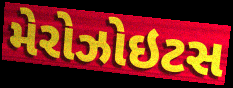
મેરોઝોઇટસ